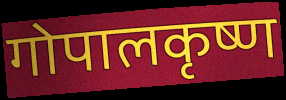
गोपालकृष्‍ण